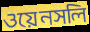
ওয়েনসলি